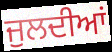
ਜੁਲਦੀਆਂ